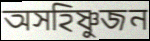
অসহিষ্ণুজন